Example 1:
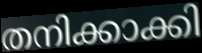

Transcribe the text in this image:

തനിക്കാക്കി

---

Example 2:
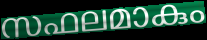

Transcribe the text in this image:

സഫലമാകും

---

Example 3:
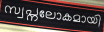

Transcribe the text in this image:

സ്വപ്നലോകമായി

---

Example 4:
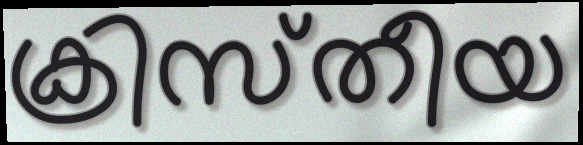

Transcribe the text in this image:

ക്രിസ്‌തീയ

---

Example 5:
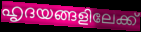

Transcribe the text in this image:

ഹൃദയങ്ങളിലേക്ക്